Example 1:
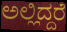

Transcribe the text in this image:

ಅಲ್ಲಿದ್ದರೆ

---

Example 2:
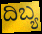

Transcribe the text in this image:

ದಿಬ್ಯ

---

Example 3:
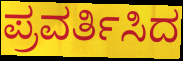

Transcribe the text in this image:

ಪ್ರವರ್ತಿಸಿದ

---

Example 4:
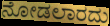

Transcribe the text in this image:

ನೋಡಲಾರದು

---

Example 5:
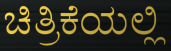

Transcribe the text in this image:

ಚಿತ್ರಿಕೆಯಲ್ಲಿ